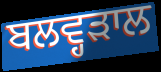
ਬਲਵ੍ਹੜਾਲ